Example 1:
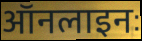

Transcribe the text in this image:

ऑनलाइनः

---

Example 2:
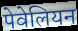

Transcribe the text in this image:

पेवेलियन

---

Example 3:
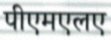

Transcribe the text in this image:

पीएमएलए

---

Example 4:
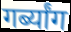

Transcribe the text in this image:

गर्ब्यांग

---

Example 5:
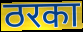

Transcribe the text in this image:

ठरका